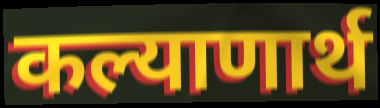
कल्याणार्थ